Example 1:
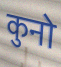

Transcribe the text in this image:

कुनो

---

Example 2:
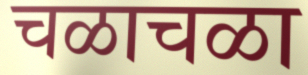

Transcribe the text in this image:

चळाचळा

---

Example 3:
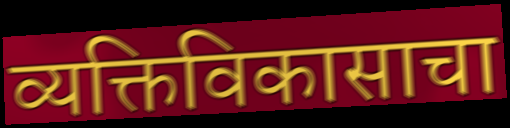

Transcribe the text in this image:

व्यक्तिविकासाचा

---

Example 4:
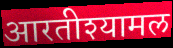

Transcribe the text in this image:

आरतीश्यामल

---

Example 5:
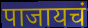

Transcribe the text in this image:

पाजायचं